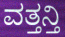
ವತ್ತನ್ತಿ